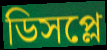
ডিসপ্লে